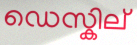
ഡെസ്കില്